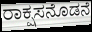
ರಾಕ್ಷಸನೊಡನೆ